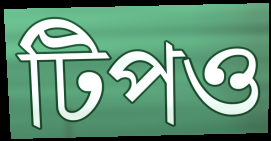
টিপও